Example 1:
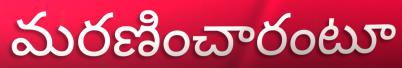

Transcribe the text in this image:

మరణించారంటూ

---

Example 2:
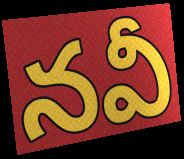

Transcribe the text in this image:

నవీ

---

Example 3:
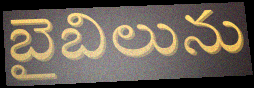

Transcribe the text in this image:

బైబిలును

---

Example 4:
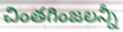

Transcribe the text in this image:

చింతగింజలన్నీ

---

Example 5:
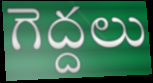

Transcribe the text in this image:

గెద్దలు